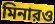
মিনারও